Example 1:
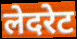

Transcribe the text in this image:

लेदरेट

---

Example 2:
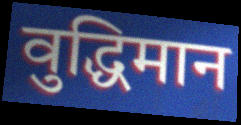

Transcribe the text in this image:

वुद्धिमान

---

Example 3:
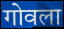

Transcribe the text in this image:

गोवला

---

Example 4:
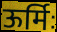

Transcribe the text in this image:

ऊर्मिः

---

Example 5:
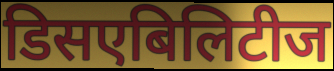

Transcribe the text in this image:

डिसएबिलिटीज